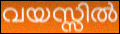
വയസ്സിൽ